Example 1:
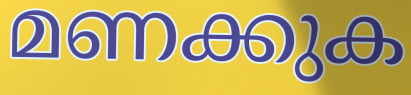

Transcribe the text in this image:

മണക്കുക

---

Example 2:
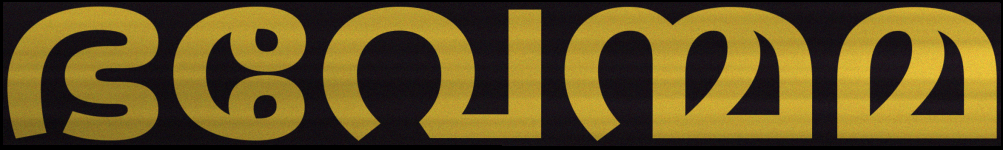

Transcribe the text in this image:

ഭവേന്മമ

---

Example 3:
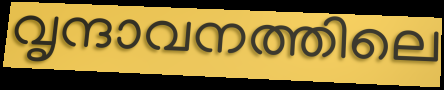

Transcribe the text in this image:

വൃന്ദാവനത്തിലെ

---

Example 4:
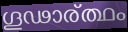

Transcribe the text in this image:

ഗൂഢാര്ത്ഥം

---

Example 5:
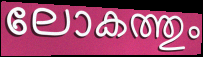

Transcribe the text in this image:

ലോകത്തും